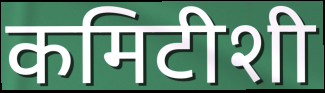
कमिटीशी